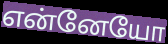
என்னேயோ